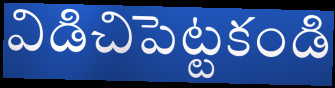
విడిచిపెట్టకండి